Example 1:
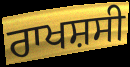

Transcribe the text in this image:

ਰਾਖਸ਼ਸੀ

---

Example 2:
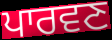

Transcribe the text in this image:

ਪਾਰਵਣ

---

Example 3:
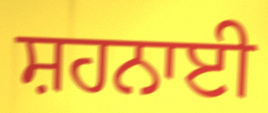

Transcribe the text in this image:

ਸ਼ਹਨਾਈ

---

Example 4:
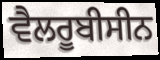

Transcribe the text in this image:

ਵੈਲਰੂਬੀਸੀਨ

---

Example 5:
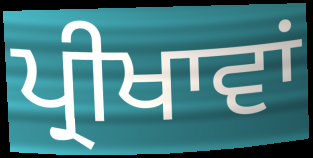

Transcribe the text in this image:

ਪ੍ਰੀਖਾਵਾਂ